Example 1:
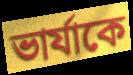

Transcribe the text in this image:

ভার্যাকে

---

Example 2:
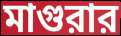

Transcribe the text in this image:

মাগুরার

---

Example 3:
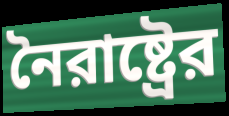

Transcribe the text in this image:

নৈরাষ্ট্রের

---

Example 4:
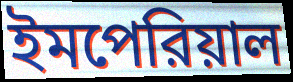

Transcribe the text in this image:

ইমপেরিয়াল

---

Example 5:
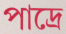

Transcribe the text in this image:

পাদ্রে